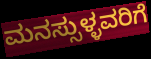
ಮನಸ್ಸುಳ್ಳವರಿಗೆ